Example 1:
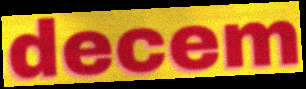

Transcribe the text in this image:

decem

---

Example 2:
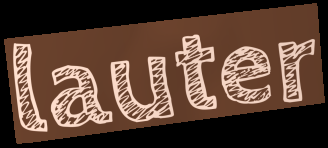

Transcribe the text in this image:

lauter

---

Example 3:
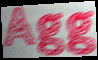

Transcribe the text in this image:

Agg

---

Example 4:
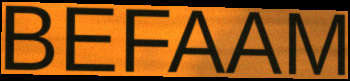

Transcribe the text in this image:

BEFAAM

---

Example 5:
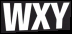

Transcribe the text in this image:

WXY